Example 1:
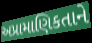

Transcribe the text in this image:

અપ્રામાણિકતાને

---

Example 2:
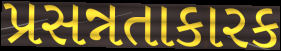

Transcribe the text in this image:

પ્રસન્નતાકારક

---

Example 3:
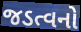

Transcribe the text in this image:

જડત્વનો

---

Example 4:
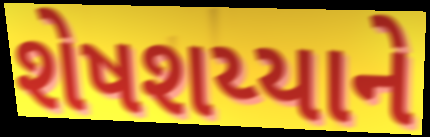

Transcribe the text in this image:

શેષશય્યાને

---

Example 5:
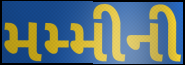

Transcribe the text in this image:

મમ્મીની